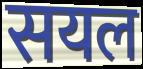
सयल